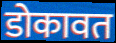
डोकावत